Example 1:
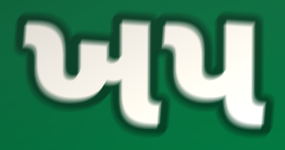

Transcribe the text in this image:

ખપ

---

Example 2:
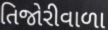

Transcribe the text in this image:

તિજોરીવાળા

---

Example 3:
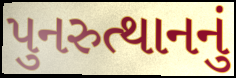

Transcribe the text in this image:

પુનરુત્થાનનું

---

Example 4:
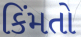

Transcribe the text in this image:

કિંમતો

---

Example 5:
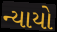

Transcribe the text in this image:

ન્યાયો